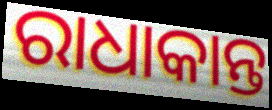
ରାଧାକାନ୍ତ